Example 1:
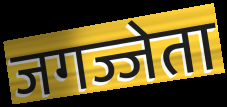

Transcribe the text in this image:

जगज्जेता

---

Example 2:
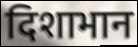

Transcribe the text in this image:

दिशाभान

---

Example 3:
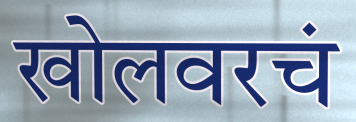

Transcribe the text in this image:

खोलवरचं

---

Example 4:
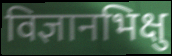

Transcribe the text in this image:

विज्ञानभिक्षु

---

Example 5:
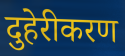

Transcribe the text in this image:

दुहेरीकरण